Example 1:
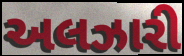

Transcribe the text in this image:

અલઝારી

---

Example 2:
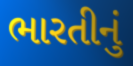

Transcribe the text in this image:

ભારતીનું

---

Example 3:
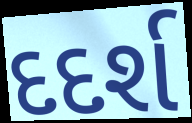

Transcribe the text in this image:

દદર્શ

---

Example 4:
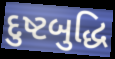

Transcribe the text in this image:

દુષ્ટબુદ્ધિ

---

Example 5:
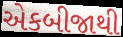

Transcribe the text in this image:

એકબીજાથી